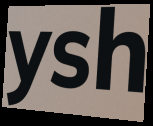
ysh